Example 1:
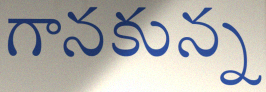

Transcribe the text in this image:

గానకున్న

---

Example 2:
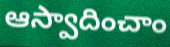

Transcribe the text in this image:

ఆస్వాదించాం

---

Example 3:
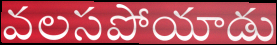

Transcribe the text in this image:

వలసపోయాడు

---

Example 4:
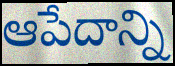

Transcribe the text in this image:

ఆపేదాన్ని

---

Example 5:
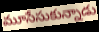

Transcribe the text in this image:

మూసేసుకున్నాడు